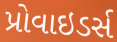
પ્રોવાઇડર્સ